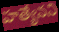
హత్యేనని